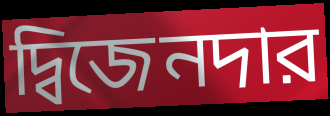
দ্বিজেনদার